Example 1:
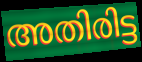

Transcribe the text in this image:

അതിരിട്ട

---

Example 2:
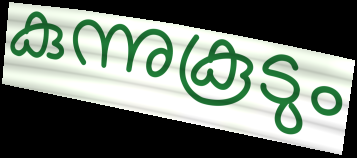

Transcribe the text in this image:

കുന്നുകൂടും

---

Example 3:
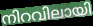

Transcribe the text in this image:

നിറവിലായി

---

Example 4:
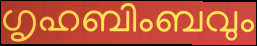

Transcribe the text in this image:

ഗൃഹബിംബവും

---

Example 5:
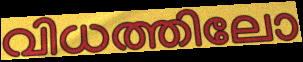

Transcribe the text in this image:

വിധത്തിലോ